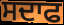
ਸਦਾਫ